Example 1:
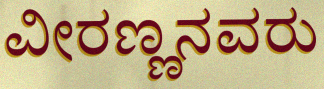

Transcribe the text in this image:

ವೀರಣ್ಣನವರು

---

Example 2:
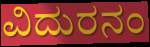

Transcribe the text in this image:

ವಿದುರನಂ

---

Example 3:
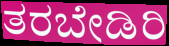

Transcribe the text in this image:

ತರಬೇಡಿರಿ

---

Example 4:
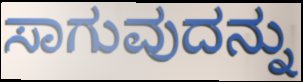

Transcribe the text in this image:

ಸಾಗುವುದನ್ನು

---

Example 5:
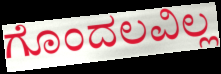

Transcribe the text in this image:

ಗೊಂದಲವಿಲ್ಲ